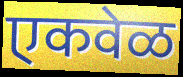
एकवेळ